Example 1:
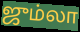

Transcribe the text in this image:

ஜும்லா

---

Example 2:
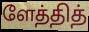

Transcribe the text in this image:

ளேத்தித்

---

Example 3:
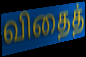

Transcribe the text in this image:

விதைத்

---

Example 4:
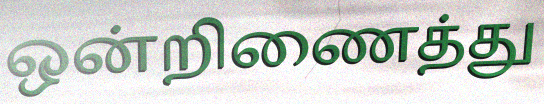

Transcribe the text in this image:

ஒன்றிணைத்து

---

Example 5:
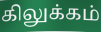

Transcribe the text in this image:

கிலுக்கம்